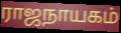
ராஜநாயகம்